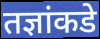
तज्ञांकडे